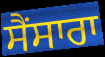
ਸੈਂਸਾਰਾ